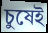
চুষেই